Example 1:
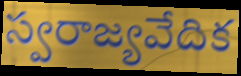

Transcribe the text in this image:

స్వరాజ్యవేదిక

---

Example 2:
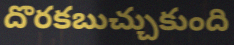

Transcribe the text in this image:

దొరకబుచ్చుకుంది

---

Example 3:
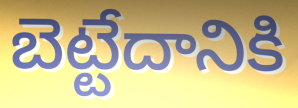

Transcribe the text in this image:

బెట్టేదానికి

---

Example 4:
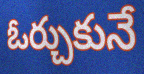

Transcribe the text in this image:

ఓర్చుకునే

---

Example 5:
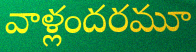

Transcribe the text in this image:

వాళ్లందరమూ